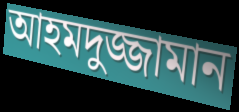
আহমদুজ্জামান